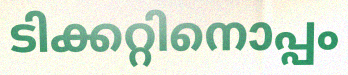
ടിക്കറ്റിനൊപ്പം